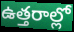
ఉత్తరాల్లో